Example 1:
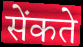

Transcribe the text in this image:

सेंकते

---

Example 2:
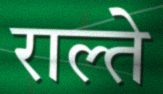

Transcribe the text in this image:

राल्ते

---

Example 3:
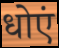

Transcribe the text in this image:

धोएं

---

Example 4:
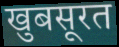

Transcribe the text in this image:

खुबसूरत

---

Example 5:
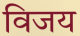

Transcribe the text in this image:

विजय